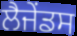
ਲੈਜੇਂਡਸ